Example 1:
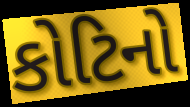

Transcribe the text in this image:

કોટિનો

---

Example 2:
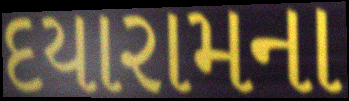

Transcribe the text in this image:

દયારામના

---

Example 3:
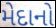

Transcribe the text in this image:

મેદાનો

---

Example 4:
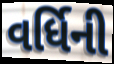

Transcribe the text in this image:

વર્ધિની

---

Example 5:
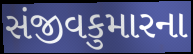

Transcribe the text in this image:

સંજીવકુમારના